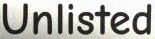
Unlisted